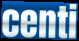
centi